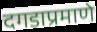
दगडाप्रमाणे